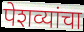
पेशव्यांचा